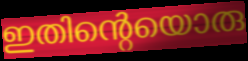
ഇതിന്റെയൊരു